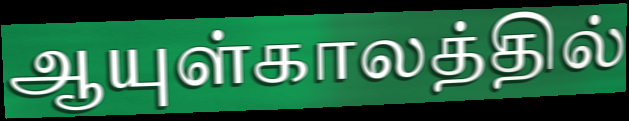
ஆயுள்காலத்தில்